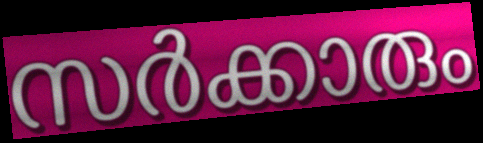
സർക്കാരും